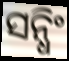
ସନ୍ଧିଂ